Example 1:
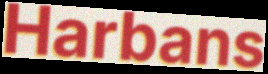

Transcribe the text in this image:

Harbans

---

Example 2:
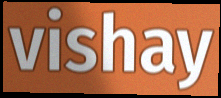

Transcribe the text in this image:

vishay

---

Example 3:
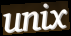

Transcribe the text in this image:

unix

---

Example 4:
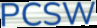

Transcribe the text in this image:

PCSW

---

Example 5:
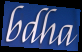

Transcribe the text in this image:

bdha